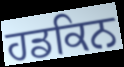
ਹਡਕਿਨ